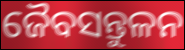
ଜୈବସନ୍ତୁଳନ